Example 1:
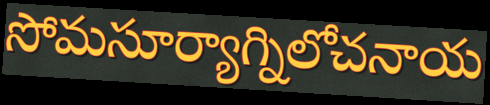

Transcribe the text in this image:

సోమసూర్యాగ్నిలోచనాయ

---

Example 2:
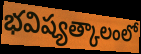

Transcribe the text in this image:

భవిష్యత్కాలంలో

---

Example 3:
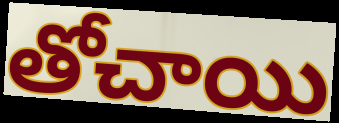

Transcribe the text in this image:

తోచాయి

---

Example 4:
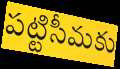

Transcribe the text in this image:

పట్టిసీమకు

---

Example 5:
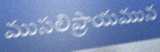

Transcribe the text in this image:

ముసలిప్రాయమున